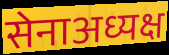
सेनाअध्यक्ष